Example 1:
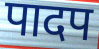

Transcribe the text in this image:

पादप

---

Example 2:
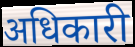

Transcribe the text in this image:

अधिकारी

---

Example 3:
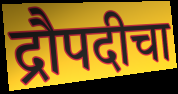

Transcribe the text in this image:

द्रौपदीचा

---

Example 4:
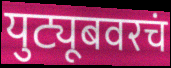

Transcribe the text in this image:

युट्यूबवरचं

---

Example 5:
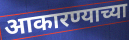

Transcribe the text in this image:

आकारण्याच्या